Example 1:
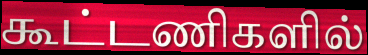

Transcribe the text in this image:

கூட்டணிகளில்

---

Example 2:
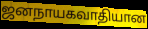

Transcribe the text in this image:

ஜனநாயகவாதியான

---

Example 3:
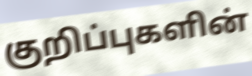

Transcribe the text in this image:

குறிப்புகளின்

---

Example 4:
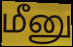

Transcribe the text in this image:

மீனு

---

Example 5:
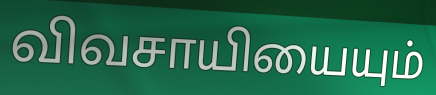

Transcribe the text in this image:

விவசாயியையும்